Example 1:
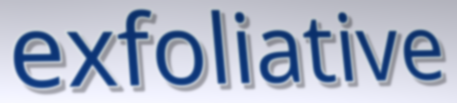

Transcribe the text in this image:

exfoliative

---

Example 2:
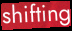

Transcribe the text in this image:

shifting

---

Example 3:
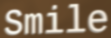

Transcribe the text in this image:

Smile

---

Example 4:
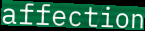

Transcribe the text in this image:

affection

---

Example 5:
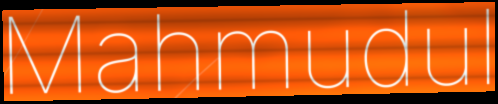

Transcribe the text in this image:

Mahmudul